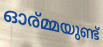
ഓര്മ്മയുണ്ട്